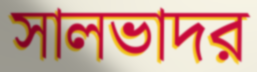
সালভাদর